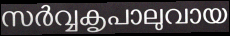
സർവ്വകൃപാലുവായ